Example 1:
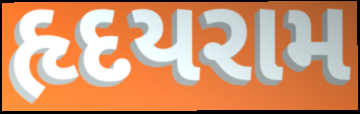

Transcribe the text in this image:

હૃદયરામ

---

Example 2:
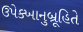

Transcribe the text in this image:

ઉપેક્ખાનુબ્રૂહિતે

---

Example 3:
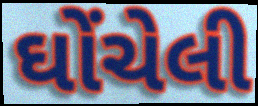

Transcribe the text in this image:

ઘોંચેલી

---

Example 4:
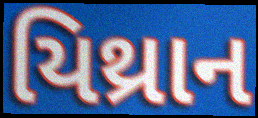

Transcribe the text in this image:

યિથ્રાન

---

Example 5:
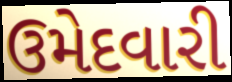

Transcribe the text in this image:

ઉમેદવારી